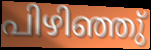
പിഴിഞ്ഞു്